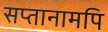
सप्तानामपि